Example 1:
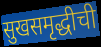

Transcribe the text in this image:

सुखसमृद्धीची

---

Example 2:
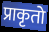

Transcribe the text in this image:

प्राकृतो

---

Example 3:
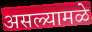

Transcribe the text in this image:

असल्यामळे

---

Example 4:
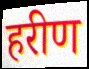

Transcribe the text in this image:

हरीण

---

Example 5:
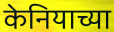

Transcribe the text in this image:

केनियाच्या